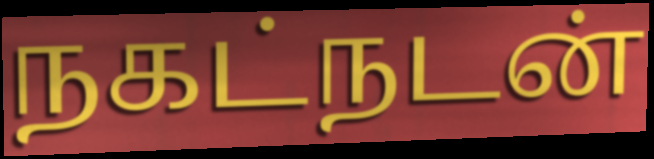
நகட்நடன்